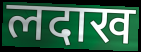
लदाख